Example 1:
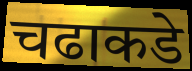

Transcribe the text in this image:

चढाकडे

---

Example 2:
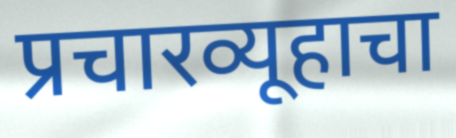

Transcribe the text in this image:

प्रचारव्यूहाचा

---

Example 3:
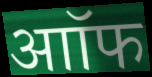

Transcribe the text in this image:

आॉफ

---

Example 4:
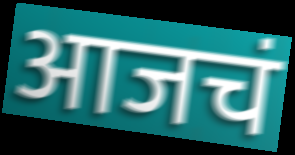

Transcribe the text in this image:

आजचं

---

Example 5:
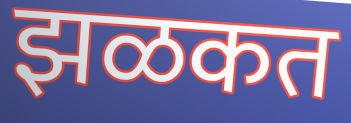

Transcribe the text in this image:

झळकत